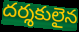
దర్శకులైన